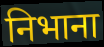
निभाना